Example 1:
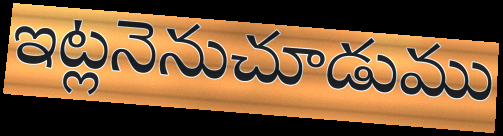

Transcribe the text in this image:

ఇట్లనెనుచూడుము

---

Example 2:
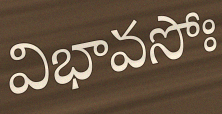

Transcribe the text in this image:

విభావసోః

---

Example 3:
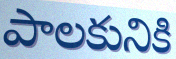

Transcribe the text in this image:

పాలకునికి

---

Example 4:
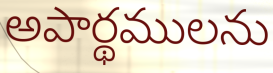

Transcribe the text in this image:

అపార్థములను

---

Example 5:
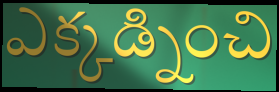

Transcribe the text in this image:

ఎక్కడ్నించి